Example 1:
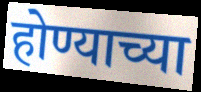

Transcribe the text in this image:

होण्‍याच्‍या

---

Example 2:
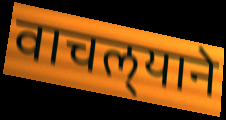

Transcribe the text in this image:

वाचल्याने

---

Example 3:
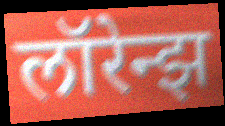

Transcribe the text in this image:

लॉरेन्झ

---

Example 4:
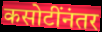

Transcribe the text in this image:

कसोटींनंतर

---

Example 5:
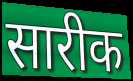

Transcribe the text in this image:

सारीक